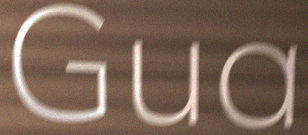
Gua